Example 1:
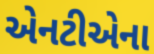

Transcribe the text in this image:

એનટીએના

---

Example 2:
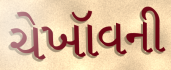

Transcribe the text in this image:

ચેખૉવની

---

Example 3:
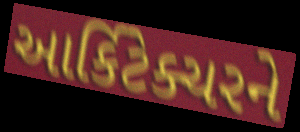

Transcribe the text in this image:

આર્કિટેક્ચરને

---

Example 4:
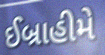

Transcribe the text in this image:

ઈબ્રાહીમે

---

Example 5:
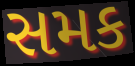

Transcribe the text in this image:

સમક